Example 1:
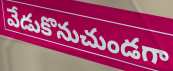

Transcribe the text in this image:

వేడుకొనుచుండగా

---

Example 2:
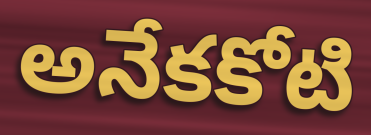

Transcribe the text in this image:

అనేకకోటి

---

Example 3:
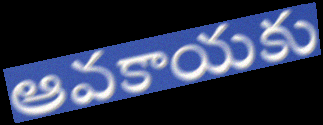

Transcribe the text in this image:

ఆవకాయకు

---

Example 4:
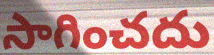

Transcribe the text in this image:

సాగించదు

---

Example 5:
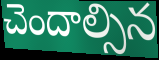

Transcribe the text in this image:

చెందాల్సిన